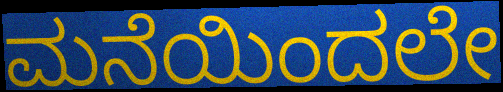
ಮನೆಯಿಂದಲೇ